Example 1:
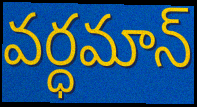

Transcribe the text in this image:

వర్ధమాన్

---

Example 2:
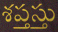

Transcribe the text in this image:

శప్తస్తు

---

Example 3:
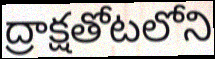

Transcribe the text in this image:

ద్రాక్షతోటలోని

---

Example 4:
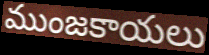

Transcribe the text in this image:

ముంజకాయలు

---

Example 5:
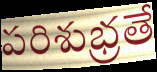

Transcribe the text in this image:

పరిశుభ్రతే